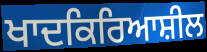
ਖਾਦਕਿਰਿਆਸ਼ੀਲ